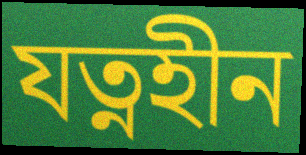
যত্নহীন